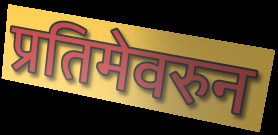
प्रतिमेवरुन